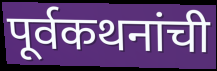
पूर्वकथनांची